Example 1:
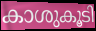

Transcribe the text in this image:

കാശുകൂടി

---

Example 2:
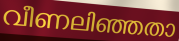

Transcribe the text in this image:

വീണലിഞ്ഞതാ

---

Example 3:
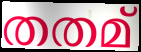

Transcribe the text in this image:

തതമ്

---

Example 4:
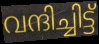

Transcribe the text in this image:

വന്ദിച്ചിട്ട്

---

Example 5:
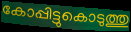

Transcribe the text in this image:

കോപ്പിട്ടുകൊടുത്തു